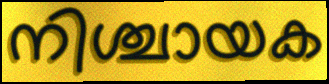
നിശ്ചായക